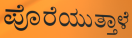
ಪೊರೆಯುತ್ತಾಳೆ